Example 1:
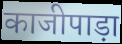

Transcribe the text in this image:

काजीपाड़ा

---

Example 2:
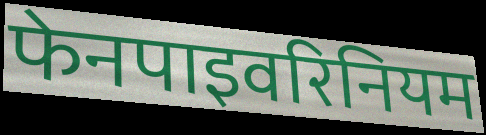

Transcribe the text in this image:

फेनपाइवरिनियम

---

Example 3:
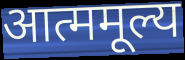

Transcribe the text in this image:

आत्ममूल्य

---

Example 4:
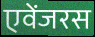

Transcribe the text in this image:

एवेंजरस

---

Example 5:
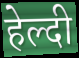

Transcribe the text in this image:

हेल्दी